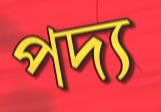
পদ্য